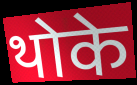
थोके